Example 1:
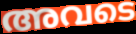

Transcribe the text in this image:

അവടെ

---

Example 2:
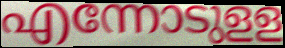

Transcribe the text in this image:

എന്നോടുളള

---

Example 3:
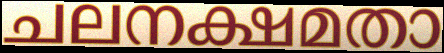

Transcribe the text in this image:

ചലനക്ഷമതാ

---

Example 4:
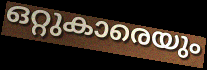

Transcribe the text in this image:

ഒറ്റുകാരെയും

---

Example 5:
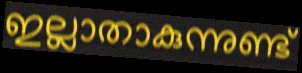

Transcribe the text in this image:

ഇല്ലാതാകുന്നുണ്ട്